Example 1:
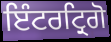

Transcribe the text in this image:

ਇੰਟਰਟ੍ਰਿਗੋ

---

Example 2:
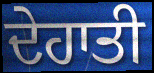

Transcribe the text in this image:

ਦੇਹਾਤੀ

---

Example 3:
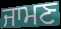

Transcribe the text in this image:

ਜਾਮਣ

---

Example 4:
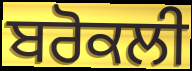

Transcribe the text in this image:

ਬਰੋਕਲੀ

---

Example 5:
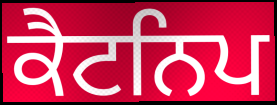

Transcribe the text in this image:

ਕੈਟਨਿਪ